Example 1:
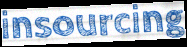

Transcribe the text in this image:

insourcing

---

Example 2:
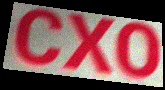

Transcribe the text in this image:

CXO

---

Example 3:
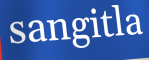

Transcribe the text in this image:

sangitla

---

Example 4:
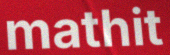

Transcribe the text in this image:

mathit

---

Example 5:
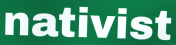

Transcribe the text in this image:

nativist